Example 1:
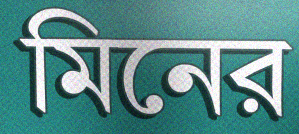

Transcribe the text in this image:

মিনের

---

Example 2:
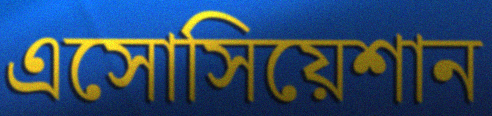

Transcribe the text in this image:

এসোসিয়েশান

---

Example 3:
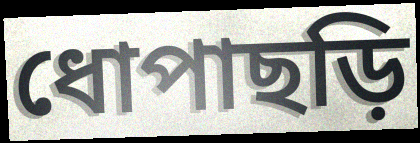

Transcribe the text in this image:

ধোপাছড়ি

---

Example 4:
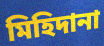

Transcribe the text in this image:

মিহিদানা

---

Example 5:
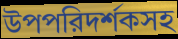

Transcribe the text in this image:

উপপরিদর্শকসহ